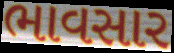
ભાવસાર